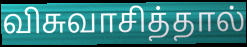
விசுவாசித்தால்